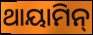
ଥାୟାମିନ୍